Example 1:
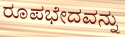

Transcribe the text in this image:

ರೂಪಭೇದವನ್ನು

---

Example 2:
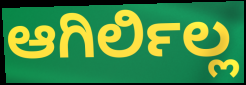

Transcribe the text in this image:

ಆಗಿರ್ಲಿಲ್ಲ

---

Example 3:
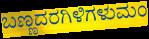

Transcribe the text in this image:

ಬಣ್ಣದರಗಿಳಿಗಳುಮಂ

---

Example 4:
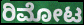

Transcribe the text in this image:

ರಿಮೋಟ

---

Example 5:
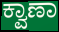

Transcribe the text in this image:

ಕ್ವಾಣಾ